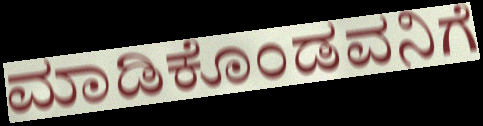
ಮಾಡಿಕೊಂಡವನಿಗೆ